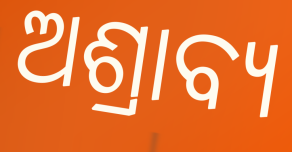
ଅଶ୍ରାବ୍ୟ